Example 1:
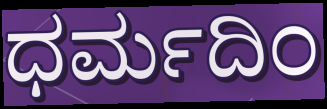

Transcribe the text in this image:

ಧರ್ಮದಿಂ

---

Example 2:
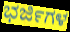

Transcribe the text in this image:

ಭರ್ಜಿಗಳ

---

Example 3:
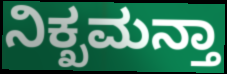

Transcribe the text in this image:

ನಿಕ್ಖಮನ್ತಾ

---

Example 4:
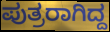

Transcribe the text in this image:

ಪುತ್ರರಾಗಿದ್ದ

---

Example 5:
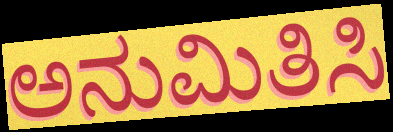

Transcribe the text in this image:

ಅನುಮಿತಿಸಿ